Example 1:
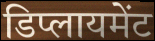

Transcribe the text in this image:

डिप्लायमेंट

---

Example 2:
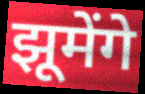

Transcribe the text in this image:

झूमेंगे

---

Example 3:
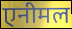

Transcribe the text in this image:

एनीमल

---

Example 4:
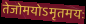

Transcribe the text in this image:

तेजोमयोऽमृतमयः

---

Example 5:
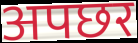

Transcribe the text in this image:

अपछर